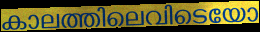
കാലത്തിലെവിടെയോ